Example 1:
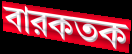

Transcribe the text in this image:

বারকতক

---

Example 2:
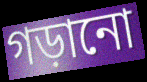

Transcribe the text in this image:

গড়ানো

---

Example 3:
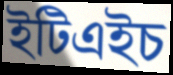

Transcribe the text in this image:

ইটিএইচ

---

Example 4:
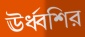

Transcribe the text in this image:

ঊর্ধ্বশির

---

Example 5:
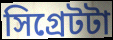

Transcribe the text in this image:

সিগ্রেটটা